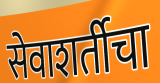
सेवाशर्तीचा